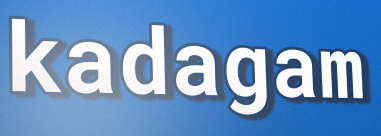
kadagam